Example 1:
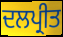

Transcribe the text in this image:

ਦਲਪ੍ਰੀਤ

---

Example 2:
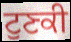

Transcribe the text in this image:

ਟੁਣਕੀ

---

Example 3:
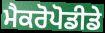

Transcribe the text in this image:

ਮੈਕਰੋਪੋਡੀਡੇ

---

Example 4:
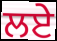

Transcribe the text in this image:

ਲਏੇ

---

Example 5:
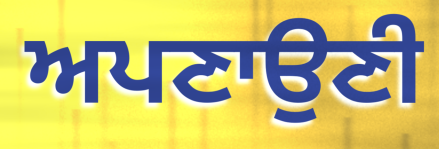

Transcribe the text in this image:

ਅਪਣਾਉਣੀ